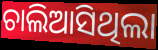
ଚାଲିଆସିଥିଲା